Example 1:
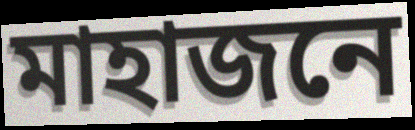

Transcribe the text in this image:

মাহাজনে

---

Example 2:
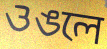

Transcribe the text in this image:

ওঙলে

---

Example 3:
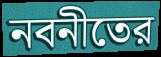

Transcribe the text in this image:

নবনীতের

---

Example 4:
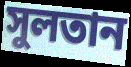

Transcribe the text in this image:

সুলতান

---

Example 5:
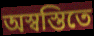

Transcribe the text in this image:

অস্বস্তিতে